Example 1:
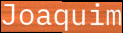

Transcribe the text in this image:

Joaquim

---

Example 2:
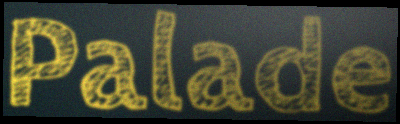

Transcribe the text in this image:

Palade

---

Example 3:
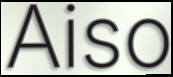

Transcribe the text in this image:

Aiso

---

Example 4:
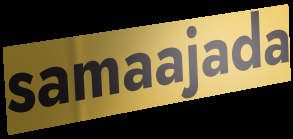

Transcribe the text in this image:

samaajada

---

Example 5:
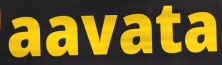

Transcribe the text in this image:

aavata